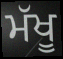
ਮੱਖੂ